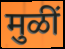
मुळीं